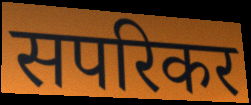
सपरिकर